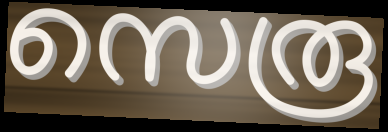
സെരൂ